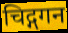
चिद्गगन